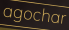
agochar